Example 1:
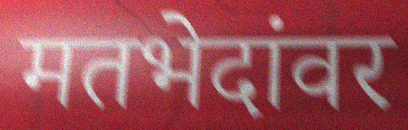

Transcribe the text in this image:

मतभेदांवर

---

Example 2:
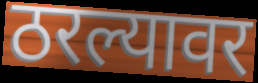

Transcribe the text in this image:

ठरल्यावर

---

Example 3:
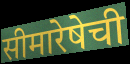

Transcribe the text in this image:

सीमारेषेची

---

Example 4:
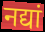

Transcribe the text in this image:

नद्यां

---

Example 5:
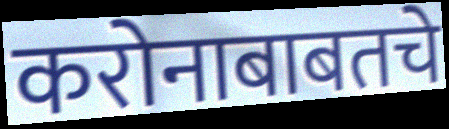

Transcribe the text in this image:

करोनाबाबतचे